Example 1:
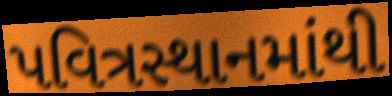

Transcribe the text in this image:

પવિત્રસ્થાનમાંથી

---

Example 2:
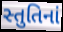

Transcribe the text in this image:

સ્તુતિનાં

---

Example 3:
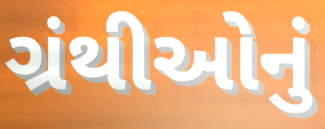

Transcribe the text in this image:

ગ્રંથીઓનું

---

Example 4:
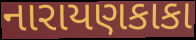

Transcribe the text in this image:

નારાયણકાકા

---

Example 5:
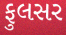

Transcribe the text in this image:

ફુલસર